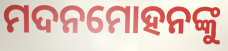
ମଦନମୋହନଙ୍କୁ